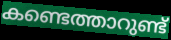
കണ്ടെത്താറുണ്ട്